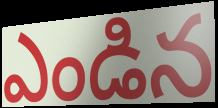
ఎండిన